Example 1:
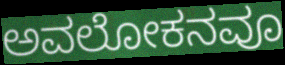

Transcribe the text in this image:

ಅವಲೋಕನವೂ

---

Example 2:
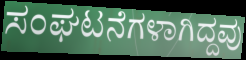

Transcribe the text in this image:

ಸಂಘಟನೆಗಳಾಗಿದ್ದವು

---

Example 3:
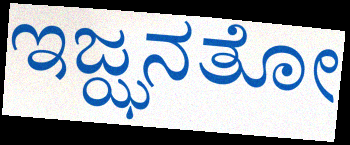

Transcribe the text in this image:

ಇಜ್ಝನತೋ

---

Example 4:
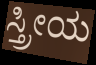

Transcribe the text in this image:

ಸ್ತ್ರೀಯ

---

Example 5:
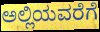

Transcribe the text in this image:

ಅಲ್ಲಿಯವರೆಗೆ